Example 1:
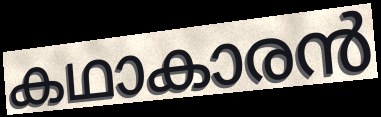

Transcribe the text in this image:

കഥാകാരൻ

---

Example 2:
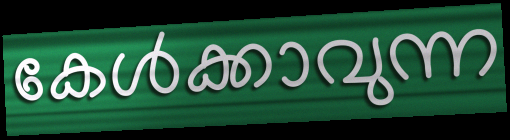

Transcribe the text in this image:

കേൾക്കാവുന്ന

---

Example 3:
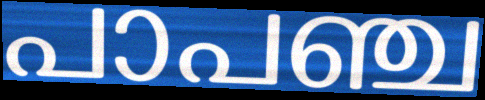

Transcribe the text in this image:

പാപഞ്ച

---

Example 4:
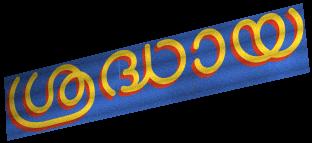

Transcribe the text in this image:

ശ്രദ്ധായ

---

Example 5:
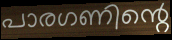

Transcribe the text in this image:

പാരഗണിന്റെ